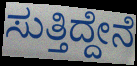
ಸುತ್ತಿದ್ದೇನೆ